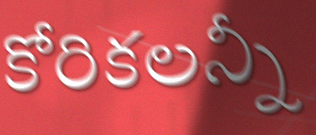
కోరికలన్నీ